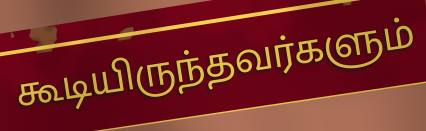
கூடியிருந்தவர்களும்